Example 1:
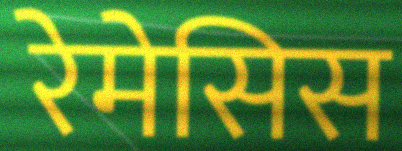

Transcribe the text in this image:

रेमेसिस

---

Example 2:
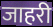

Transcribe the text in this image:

जाहरी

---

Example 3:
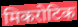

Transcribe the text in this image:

मिकरोटिक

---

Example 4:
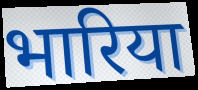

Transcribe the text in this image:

भारिया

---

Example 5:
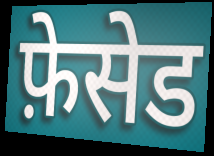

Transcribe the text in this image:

फ़ेसेड